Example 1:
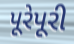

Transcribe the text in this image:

પૂરેપૂરી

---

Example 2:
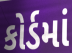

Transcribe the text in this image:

કોર્ડમાં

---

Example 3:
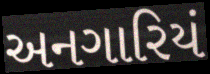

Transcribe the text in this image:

અનગારિયં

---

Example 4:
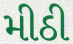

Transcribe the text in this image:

મીઠી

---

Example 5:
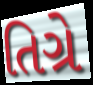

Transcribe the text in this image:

તિગ્રે